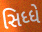
સિધ્ધે